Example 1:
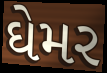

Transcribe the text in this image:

ઘેમર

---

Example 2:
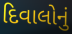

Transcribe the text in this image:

દિવાલોનું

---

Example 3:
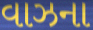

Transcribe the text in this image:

વાઝના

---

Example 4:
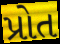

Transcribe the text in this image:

પ્રોત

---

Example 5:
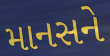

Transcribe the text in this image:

માનસને